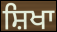
ਸ਼ਿਖਾ